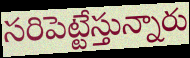
సరిపెట్టేస్తున్నారు